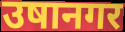
उषानगर